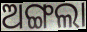
ଅଙ୍ଗଲା